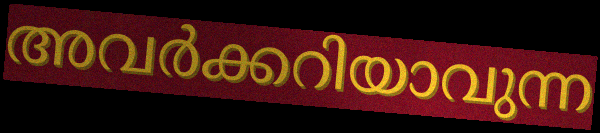
അവർക്കറിയാവുന്ന